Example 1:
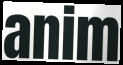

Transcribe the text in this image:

anim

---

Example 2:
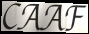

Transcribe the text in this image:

CAAF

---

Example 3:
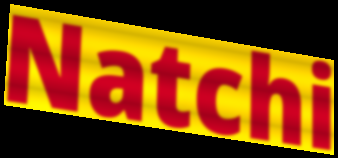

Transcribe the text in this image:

Natchi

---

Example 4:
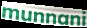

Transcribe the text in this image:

munnani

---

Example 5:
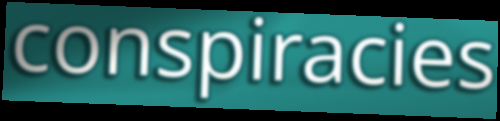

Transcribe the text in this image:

conspiracies